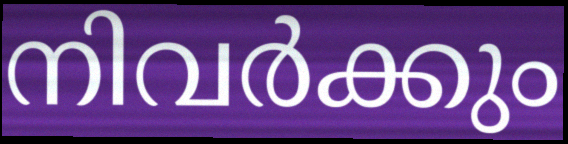
നിവർക്കും